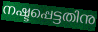
നഷ്ടപ്പെട്ടതിനു